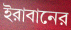
ইরাবানের